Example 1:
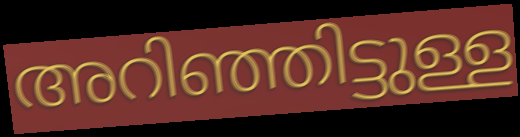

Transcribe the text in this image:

അറിഞ്ഞിട്ടുള്ള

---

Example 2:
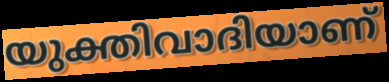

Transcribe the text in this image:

യുക്തിവാദിയാണ്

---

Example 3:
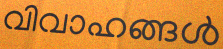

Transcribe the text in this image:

വിവാഹങ്ങൾ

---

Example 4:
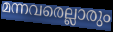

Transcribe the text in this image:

മന്നവരെല്ലാരും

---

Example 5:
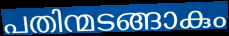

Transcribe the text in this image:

പതിന്മടങ്ങാകും